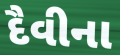
દૈવીના